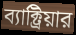
ব্যাক্ট্রিয়ার